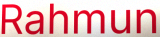
Rahmun